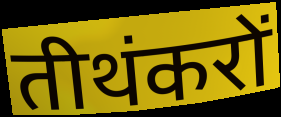
तीथंकरों